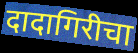
दादागिरीचा